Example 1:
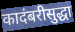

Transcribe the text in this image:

कादंबरीसुद्धा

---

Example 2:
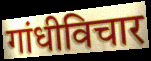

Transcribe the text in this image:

गांधीविचार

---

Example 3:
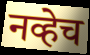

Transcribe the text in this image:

नव्हेच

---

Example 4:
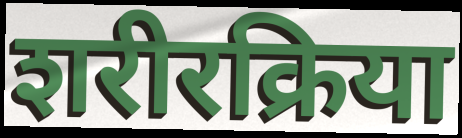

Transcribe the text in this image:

शरीरक्रिया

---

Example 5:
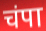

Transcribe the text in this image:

चंपा